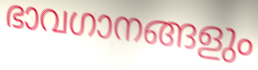
ഭാവഗാനങ്ങളും